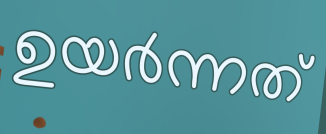
ഉയർന്നത്